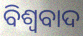
ବିଶ୍ୱବାଦ